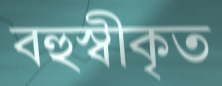
বহুস্বীকৃত